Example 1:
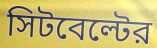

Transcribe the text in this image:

সিটবেল্টের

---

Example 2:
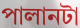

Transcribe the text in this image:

পালানটা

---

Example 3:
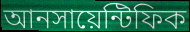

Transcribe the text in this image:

আনসায়েন্টিফিক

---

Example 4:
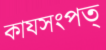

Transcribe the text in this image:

কাযসংপত্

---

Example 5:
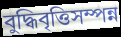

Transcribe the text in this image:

বুদ্ধিবৃত্তিসম্পন্ন